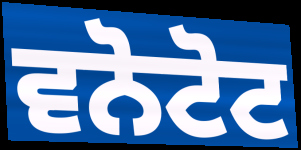
ਵਨੋਟੋਟ